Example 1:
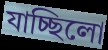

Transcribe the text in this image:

যাচ্ছিলো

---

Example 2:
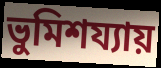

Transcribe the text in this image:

ভুমিশয্যায়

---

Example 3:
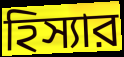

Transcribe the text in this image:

হিস্যার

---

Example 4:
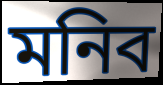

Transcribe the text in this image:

মনিব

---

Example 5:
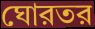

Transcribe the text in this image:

ঘোরতর